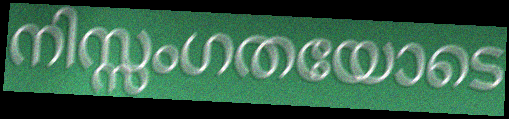
നിസ്സംഗതയോടെ